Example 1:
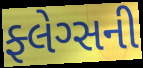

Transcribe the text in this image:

ફ્લેગ્સની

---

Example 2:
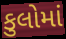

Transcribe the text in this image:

કુલોમાં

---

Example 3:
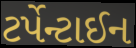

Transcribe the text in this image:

ટર્પેન્ટાઈન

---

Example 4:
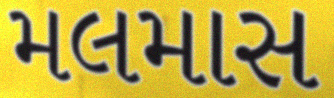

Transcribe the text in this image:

મલમાસ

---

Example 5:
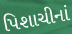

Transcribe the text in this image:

પિશાચીનાં